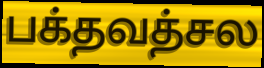
பக்தவத்சல